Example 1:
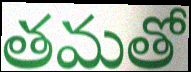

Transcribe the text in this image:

తమతో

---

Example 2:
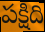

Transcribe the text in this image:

పక్షిది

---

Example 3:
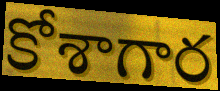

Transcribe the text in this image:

కోశాగార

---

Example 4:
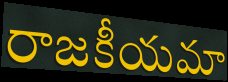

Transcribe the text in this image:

రాజకీయమా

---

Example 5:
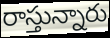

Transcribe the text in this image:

రాస్తున్నారు